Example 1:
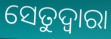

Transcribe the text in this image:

ସେତୁଦ୍ୱାରା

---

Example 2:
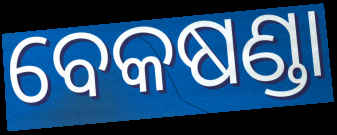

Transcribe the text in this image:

ବେକଷଣ୍ଡା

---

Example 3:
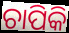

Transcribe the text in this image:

ଚାପିକି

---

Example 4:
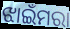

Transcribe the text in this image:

ଝାଇଁମରା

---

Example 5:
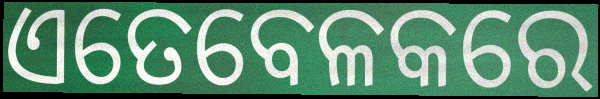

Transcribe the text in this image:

ଏତେବେଳକରେ